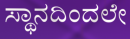
ಸ್ಥಾನದಿಂದಲೇ